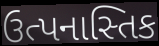
ઉત્પનાસ્તિક